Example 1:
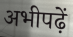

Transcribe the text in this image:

अभीपढ़ें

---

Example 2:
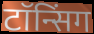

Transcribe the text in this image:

टॉन्सिंग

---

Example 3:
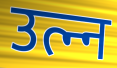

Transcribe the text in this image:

उत्न्न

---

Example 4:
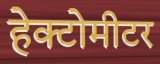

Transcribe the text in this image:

हेक्टोमीटर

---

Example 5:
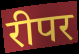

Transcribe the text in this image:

रीपर